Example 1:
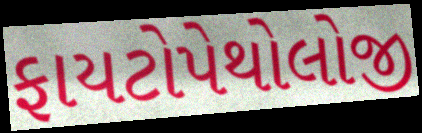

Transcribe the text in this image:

ફાયટોપેથોલોજી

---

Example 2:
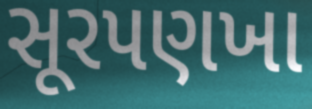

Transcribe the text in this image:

સૂરપણખા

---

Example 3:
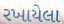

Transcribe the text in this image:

રખાયેલા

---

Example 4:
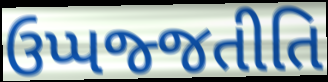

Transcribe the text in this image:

ઉપ્પજ્જતીતિ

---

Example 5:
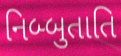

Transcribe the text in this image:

નિબ્બુતાતિ